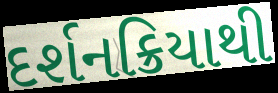
દર્શનક્રિયાથી